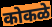
कोकळे